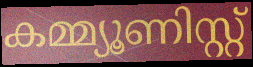
കമ്മ്യൂണിസ്റ്റ്